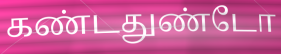
கண்டதுண்டோ